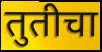
तुतीचा